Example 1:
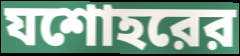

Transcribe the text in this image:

যশোহরের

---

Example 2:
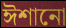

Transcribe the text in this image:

ঈশানো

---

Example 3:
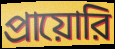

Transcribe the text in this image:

প্রায়োরি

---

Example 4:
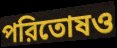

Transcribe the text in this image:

পরিতোষও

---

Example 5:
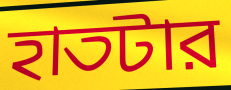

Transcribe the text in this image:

হাতটার